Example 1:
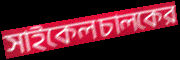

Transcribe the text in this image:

সাইকেলচালকের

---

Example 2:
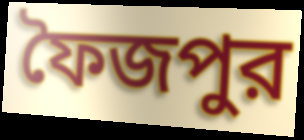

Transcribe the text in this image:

ফৈজপুর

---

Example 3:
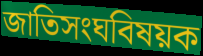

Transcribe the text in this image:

জাতিসংঘবিষয়ক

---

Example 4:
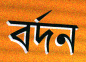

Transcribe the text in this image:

বর্দন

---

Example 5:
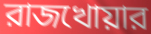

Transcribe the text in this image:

রাজখোয়ার